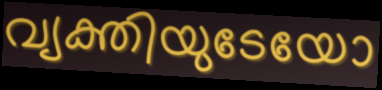
വ്യക്തിയുടേയോ